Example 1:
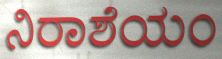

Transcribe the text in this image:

ನಿರಾಶೆಯಂ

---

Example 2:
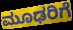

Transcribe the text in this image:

ಮೂಢರಿಗೆ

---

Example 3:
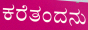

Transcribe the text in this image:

ಕರೆತಂದನು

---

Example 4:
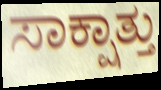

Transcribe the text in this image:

ಸಾಕ್ಷಾತ್ತು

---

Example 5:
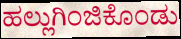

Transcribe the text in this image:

ಹಲ್ಲುಗಿಂಜಿಕೊಂಡು